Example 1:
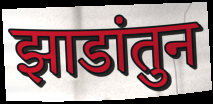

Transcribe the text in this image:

झाडांतुन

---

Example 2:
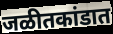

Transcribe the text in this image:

जळीतकांडात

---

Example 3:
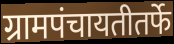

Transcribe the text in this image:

ग्रामपंचायतीतर्फे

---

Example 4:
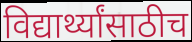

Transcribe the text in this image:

विद्यार्थ्यांसाठीच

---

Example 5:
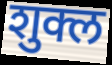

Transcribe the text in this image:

शुक्‍ल